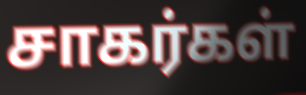
சாகர்கள்